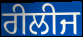
ਰੀਲੀਜ